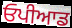
ਓਪੀਆਡ